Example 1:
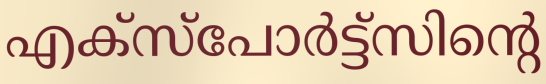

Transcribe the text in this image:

എക്സ്പോർട്ട്സിന്റെ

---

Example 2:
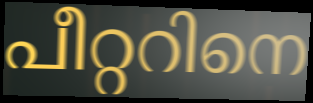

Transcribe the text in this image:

പീറ്ററിനെ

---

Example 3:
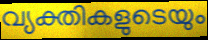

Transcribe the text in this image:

വ്യക്തികളുടെയും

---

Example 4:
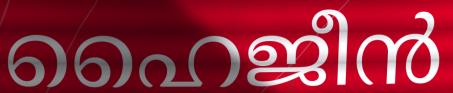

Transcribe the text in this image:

ഹൈജീൻ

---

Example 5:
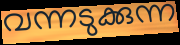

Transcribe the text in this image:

വന്നടുക്കുന്ന